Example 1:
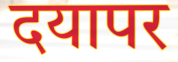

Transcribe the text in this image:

दयापर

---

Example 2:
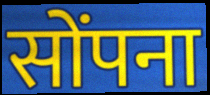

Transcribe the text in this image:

सोंपना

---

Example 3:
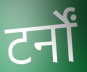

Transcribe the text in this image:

टर्नों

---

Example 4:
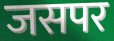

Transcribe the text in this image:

जसपर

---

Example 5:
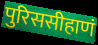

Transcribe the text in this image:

पुरिससीहाणं